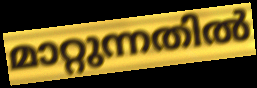
മാറ്റുന്നതിൽ